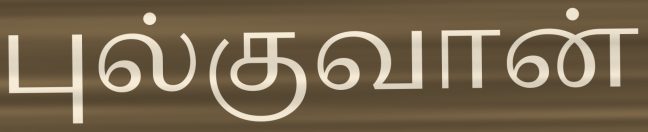
புல்குவான்